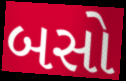
બસો